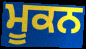
ਮੂਕਨ